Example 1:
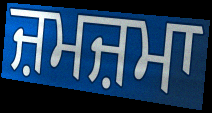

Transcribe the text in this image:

ਜ਼ਮਜ਼ਮਾ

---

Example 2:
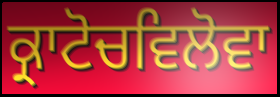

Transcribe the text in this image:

ਕ੍ਰਾਟੋਚਵਿਲੋਵਾ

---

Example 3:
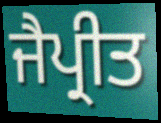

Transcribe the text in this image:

ਜੈਪ੍ਰੀਤ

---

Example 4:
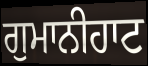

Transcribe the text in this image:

ਗੁਮਾਨੀਹਾਟ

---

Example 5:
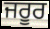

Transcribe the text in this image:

ਜਰੂਰ